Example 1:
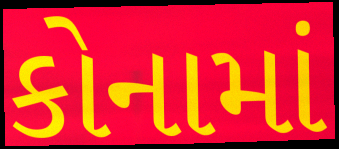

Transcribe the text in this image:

કોનામાં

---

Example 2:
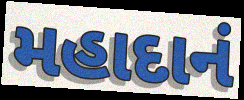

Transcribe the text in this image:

મહાદાનં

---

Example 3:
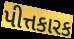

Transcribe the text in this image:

પીત્તકારક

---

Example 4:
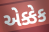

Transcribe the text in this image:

એક્કેક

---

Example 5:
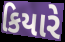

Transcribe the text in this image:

કિયારે